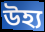
উহ্য